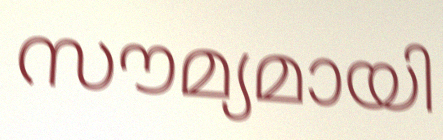
സൗമ്യമായി